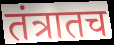
तंत्रातच